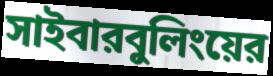
সাইবারবুলিংয়ের